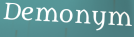
Demonym